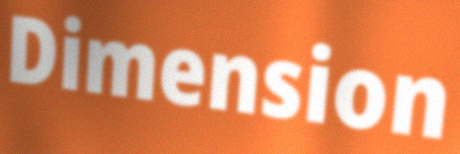
Dimension